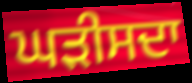
ਘੜੀਸਦਾ